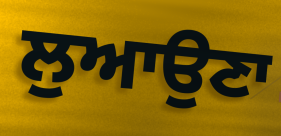
ਲੁਆਉਣਾ